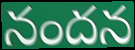
నందన